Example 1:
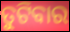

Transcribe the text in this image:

ତୁଟିବାର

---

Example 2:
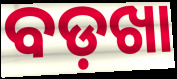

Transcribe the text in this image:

ବଡ଼ଖା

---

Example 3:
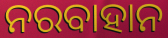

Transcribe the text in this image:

ନରବାହାନ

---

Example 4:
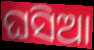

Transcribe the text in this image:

ଘସିଆ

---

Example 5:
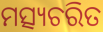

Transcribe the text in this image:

ମତ୍ସ୍ୟଚରିତ